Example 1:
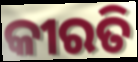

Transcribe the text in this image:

କୀରତି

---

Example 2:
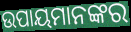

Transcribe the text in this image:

ଉପାୟମାନଙ୍କର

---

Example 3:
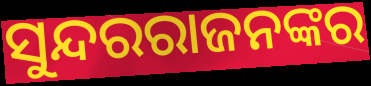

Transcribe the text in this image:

ସୁନ୍ଦରରାଜନଙ୍କର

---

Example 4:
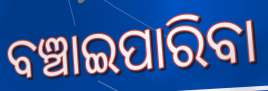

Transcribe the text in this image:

ବଞ୍ଚାଇପାରିବା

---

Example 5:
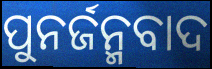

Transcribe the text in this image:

ପୁନର୍ଜନ୍ମବାଦ